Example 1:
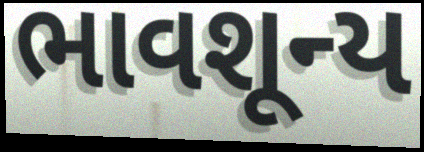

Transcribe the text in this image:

ભાવશૂન્ય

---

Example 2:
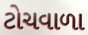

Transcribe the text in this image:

ટોચવાળા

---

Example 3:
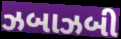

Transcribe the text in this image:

ઝબાઝબી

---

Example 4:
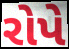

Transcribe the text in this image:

રોપે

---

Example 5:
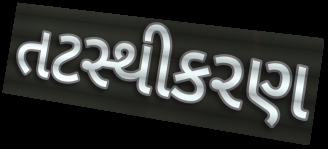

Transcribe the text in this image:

તટસ્થીકરણ